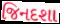
જિનદશા